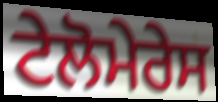
ਟੇਲੋਮੇਰੇਸ